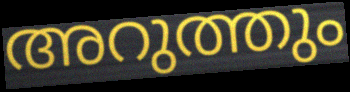
അറുത്തും